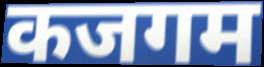
कजगम